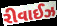
રીવાઈઝ